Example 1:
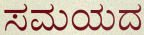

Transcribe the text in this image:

ಸಮಯದ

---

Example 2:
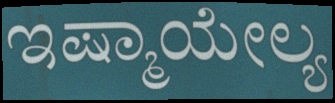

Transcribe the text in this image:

ಇಷ್ಮಾಯೇಲ್ಯ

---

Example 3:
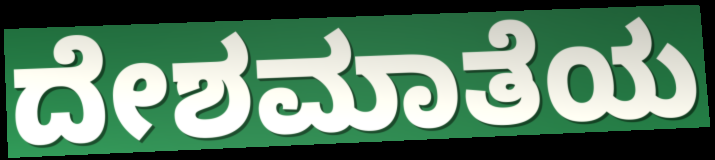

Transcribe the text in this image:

ದೇಶಮಾತೆಯ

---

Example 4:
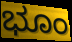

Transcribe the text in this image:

ಭೂಂ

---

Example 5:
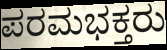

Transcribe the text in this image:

ಪರಮಭಕ್ತರು